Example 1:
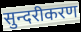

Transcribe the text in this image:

सुन्दरीकरण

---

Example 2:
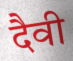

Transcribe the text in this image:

दैवी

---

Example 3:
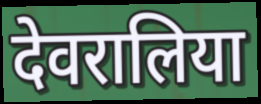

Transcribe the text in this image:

देवरालिया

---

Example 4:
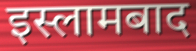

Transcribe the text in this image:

इस्लामबाद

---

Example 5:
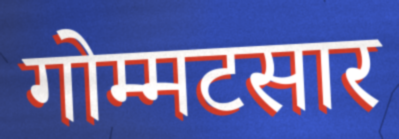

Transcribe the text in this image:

गोम्मटसार